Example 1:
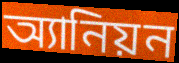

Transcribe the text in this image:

অ্যানিয়ন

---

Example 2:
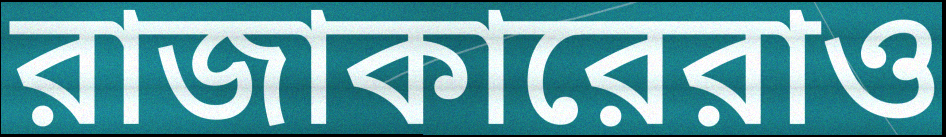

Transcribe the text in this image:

রাজাকারেরাও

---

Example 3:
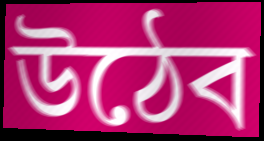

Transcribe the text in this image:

উঠেব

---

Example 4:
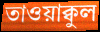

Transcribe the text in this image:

তাওয়াক্বুল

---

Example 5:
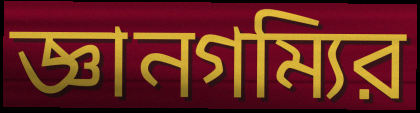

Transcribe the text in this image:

জ্ঞানগম্যির